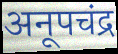
अनूपचंद्र